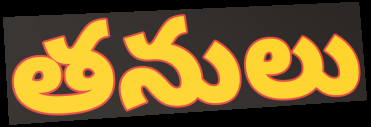
తనులు